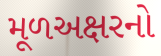
મૂળઅક્ષરનો